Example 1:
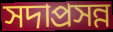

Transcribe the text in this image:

সদাপ্রসন্ন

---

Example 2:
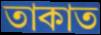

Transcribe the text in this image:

তাকাত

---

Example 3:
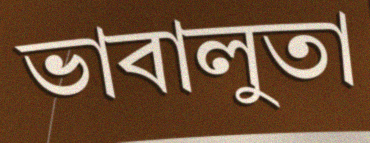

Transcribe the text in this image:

ভাবালুতা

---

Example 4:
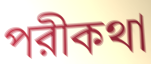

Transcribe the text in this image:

পরীকথা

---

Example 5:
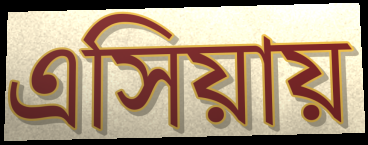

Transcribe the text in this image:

এসিয়ায়